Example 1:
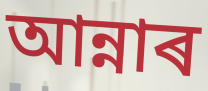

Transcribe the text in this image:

আন্নাৰ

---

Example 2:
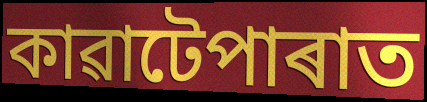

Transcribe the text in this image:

কাৱাটেপাৰাত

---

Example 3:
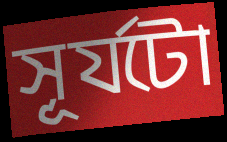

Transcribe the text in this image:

সূৰ্যটো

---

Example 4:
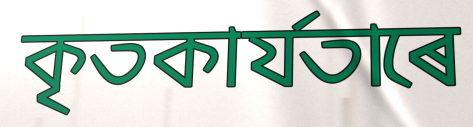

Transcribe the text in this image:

কৃতকাৰ্যতাৰে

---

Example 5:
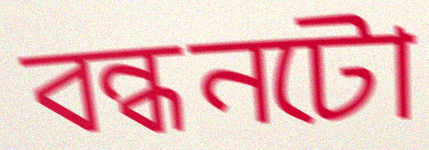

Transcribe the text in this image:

বন্ধনটো